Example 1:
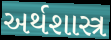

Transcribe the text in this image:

અર્થશાસ્ત્ર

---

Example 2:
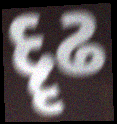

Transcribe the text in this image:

દૄઢ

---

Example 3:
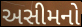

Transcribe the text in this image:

અસીમનો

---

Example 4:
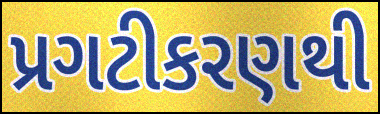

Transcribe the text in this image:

પ્રગટીકરણથી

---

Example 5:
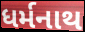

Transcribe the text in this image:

ધર્મનાથ